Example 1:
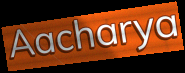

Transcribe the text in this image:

Aacharya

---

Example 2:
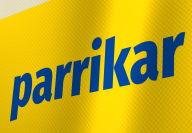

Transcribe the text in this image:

parrikar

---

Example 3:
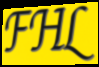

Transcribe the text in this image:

FHL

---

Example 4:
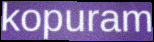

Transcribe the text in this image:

kopuram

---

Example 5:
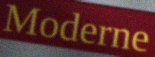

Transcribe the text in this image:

Moderne